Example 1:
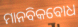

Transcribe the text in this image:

ମାନବିକବୋଧ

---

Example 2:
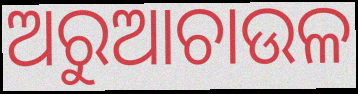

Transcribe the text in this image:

ଅରୁଆଚାଉଳ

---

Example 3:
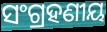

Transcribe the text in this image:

ସଂଗ୍ରହଣୀୟ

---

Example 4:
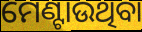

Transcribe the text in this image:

ମେଣ୍ଟାଉଥିବା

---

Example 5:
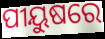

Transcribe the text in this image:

ପୀୟୁଷରେ